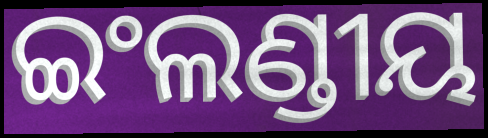
ଇଂଲଣ୍ଡୀୟ